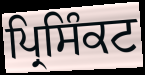
ਪ੍ਰਿਸਿੰਕਟ